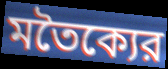
মতৈক্যের